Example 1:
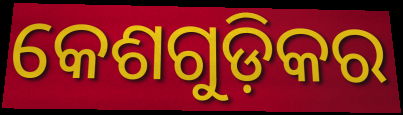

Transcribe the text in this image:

କେଶଗୁଡ଼ିକର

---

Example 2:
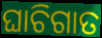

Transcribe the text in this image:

ଘାଚିଗାତ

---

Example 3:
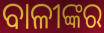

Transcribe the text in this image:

ବାଳୀଙ୍କର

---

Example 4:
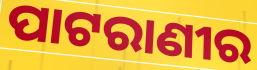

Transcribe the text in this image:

ପାଟରାଣୀର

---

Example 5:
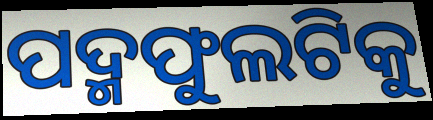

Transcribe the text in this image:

ପଦ୍ମଫୁଲଟିକୁ